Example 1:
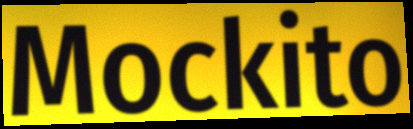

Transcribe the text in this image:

Mockito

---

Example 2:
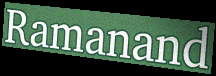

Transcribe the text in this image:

Ramanand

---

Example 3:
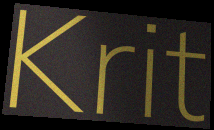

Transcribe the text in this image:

Krit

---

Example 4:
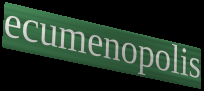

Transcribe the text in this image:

ecumenopolis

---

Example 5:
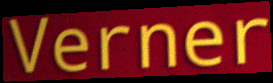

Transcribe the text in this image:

Verner